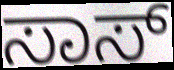
ಸಾಸ್